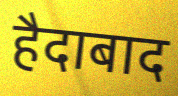
हैदाबाद